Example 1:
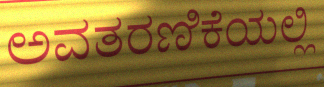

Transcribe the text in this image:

ಅವತರಣಿಕೆಯಲ್ಲಿ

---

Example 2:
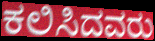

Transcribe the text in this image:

ಕಲಿಸಿದವರು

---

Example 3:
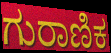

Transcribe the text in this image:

ಗುರಾಣಿಕ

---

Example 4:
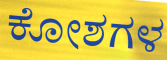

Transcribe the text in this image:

ಕೋಶಗಳ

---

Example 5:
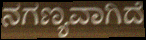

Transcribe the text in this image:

ನಗಣ್ಯವಾಗಿದೆ